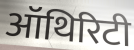
ऑथिरिटी